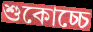
শুকোচ্চে